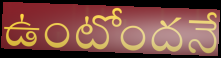
ఉంటోందనే